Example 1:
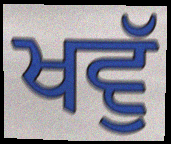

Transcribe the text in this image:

ਖਵੁੱ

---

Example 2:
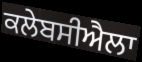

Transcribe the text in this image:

ਕਲੇਬਸੀਐਲਾ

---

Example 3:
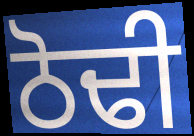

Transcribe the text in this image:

ਠੋਢੀ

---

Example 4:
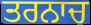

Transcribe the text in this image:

ਤਰਨਾਚ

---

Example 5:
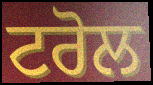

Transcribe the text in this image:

ਟਰੋਲ